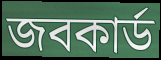
জবকার্ড